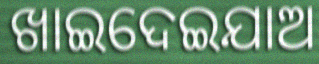
ଖାଇଦେଇଯାଅ